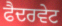
ਫੈਦਰਵੇਟ